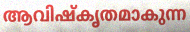
ആവിഷ്കൃതമാകുന്ന